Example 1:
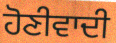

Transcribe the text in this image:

ਹੋਣੀਵਾਦੀ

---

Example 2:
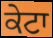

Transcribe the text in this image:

ਕੇਟਾ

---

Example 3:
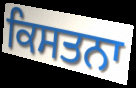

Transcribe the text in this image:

ਕਿਸਤਨਾ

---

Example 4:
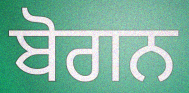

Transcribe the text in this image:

ਬੋਗਨ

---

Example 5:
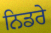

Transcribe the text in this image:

ਨਿਡਰੇ